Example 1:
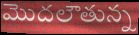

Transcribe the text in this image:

మొదలౌతున్న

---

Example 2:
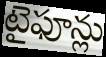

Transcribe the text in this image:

టైఫూన్లు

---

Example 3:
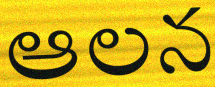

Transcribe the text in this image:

ఆలన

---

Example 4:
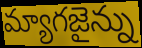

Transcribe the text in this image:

మ్యాగజైన్ను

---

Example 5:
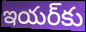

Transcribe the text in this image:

ఇయర్‌కు